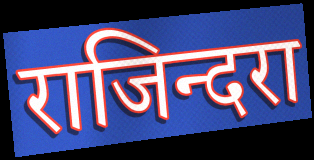
राजिन्दरा